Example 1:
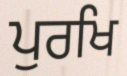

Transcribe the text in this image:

ਪੁਰਖਿ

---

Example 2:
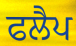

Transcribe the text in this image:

ਫਲੈਪ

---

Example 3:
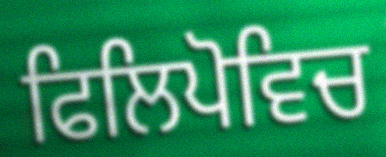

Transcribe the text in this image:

ਫਿਲਿਪੋਵਿਚ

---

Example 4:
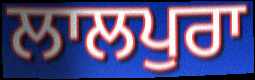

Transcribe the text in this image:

ਲਾਲਪੁਰਾ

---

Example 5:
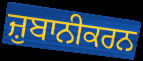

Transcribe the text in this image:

ਜ਼ੁਬਾਨੀਕਰਨ